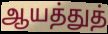
ஆயத்துத்